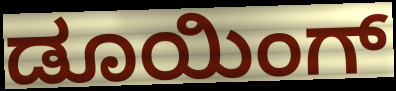
ಡೂಯಿಂಗ್